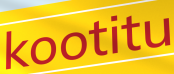
kootitu